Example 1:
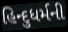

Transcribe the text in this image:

હિન્દુધર્મની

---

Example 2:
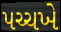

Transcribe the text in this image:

પચ્ચખે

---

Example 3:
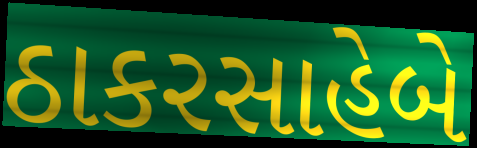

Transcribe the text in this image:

ઠાકરસાહેબે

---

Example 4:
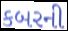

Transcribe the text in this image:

કબરની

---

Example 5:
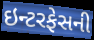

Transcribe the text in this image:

ઇન્ટરફેસની